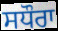
ਸਧੌਰਾ